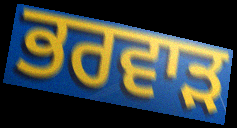
ਭਰਵਾੜ